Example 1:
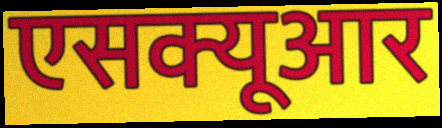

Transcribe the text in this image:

एसक्यूआर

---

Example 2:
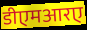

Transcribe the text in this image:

डीएमआरए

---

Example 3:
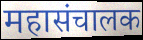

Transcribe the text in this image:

महासंचालक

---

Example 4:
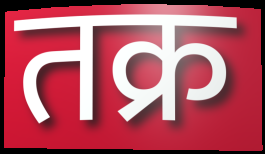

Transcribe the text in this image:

तक्र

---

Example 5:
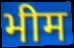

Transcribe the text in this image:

भीम